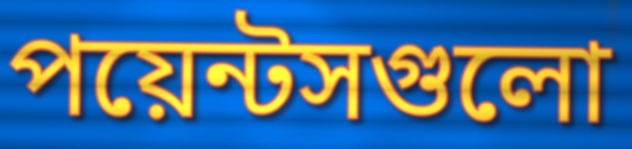
পয়েন্টসগুলো